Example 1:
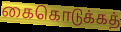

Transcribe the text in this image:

கைகொடுக்கத்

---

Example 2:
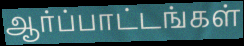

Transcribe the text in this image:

ஆர்ப்பாட்டங்கள்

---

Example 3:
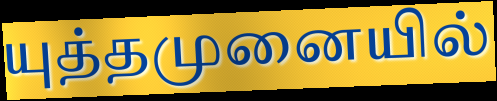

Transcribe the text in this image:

யுத்தமுனையில்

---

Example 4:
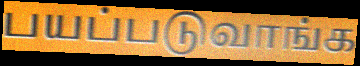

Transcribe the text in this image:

பயப்படுவாங்க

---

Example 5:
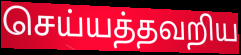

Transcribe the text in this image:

செய்யத்தவறிய